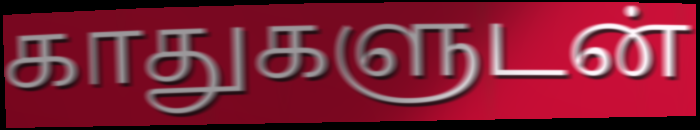
காதுகளுடன்